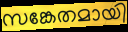
സങ്കേതമായി